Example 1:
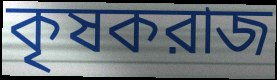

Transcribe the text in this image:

কৃষকরাজ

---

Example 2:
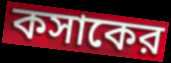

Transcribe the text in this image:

কসাকের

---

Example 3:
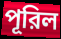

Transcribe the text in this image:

পূরিল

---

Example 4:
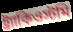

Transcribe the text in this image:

ট্র্যাকিওস্টমি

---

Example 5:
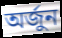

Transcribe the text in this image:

অর্জুন